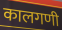
कालगणी